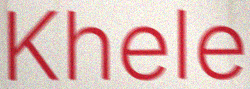
Khele